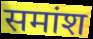
समांश